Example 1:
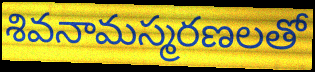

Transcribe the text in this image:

శివనామస్మరణలతో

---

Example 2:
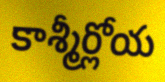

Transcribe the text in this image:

కాశ్మీర్లోయ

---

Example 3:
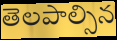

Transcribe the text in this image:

తెలపాల్సిన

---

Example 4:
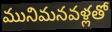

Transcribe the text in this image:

మునిమనవళ్లతో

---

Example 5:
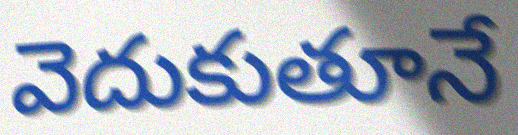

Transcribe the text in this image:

వెదుకుతూనే